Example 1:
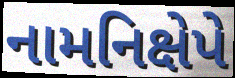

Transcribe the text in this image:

નામનિક્ષેપે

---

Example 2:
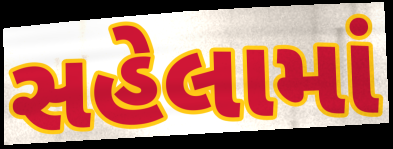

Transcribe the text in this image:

સહેલામાં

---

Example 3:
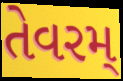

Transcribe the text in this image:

તેવરમ્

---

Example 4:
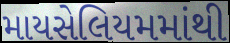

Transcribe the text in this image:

માયસેલિયમમાંથી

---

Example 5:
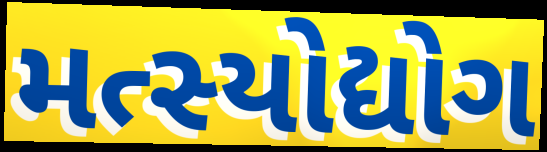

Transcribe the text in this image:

મત્સ્યોદ્યોગ